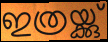
ഇത്രയ്ക്കു്